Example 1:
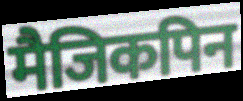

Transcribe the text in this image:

मैजिकपिन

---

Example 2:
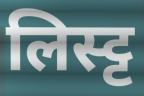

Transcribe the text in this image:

लिस्ट्ट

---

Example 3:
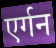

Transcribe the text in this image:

एर्गन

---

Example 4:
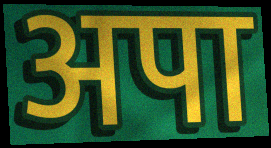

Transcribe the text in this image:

अपा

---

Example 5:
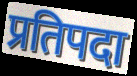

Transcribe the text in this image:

प्रतिपदा